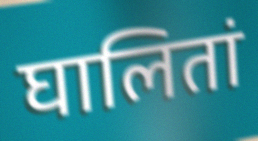
घालितां